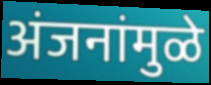
अंजनांमुळे